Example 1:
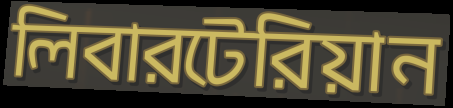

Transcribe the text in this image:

লিবারটেরিয়ান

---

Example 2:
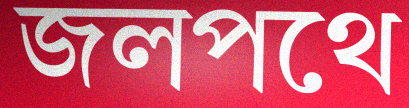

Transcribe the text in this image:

জলপথে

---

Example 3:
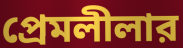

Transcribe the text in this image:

প্রেমলীলার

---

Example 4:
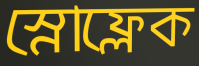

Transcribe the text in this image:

স্নোফ্লেক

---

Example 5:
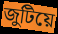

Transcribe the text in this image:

জুটিয়ে